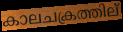
കാലചക്രത്തില്